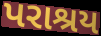
પરાશ્રય